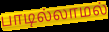
பாடில்லாமல்